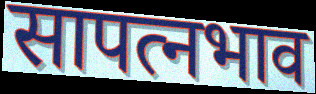
सापत्नभाव